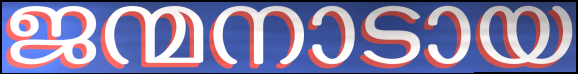
ജന്മനാടായ